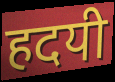
हदयी